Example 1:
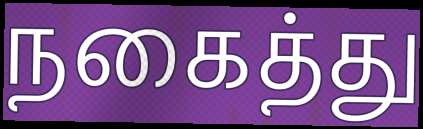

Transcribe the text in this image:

நகைத்து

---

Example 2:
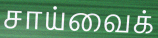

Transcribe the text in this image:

சாய்வைக்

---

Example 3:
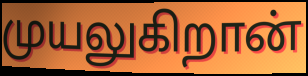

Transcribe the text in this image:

முயலுகிறான்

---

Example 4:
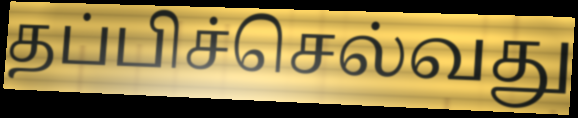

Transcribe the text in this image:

தப்பிச்செல்வது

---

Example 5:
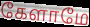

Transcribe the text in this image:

கேளாமே